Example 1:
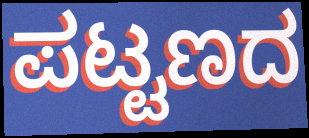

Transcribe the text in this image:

ಪಟ್ಟಣದ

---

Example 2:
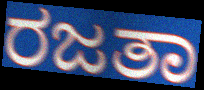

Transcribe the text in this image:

ರಜತಾ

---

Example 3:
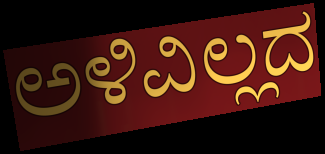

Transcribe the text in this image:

ಅಳಿವಿಲ್ಲದ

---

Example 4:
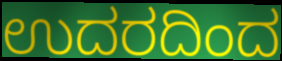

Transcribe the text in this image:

ಉದರದಿಂದ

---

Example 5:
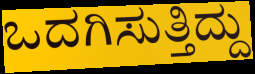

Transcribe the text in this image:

ಒದಗಿಸುತ್ತಿದ್ದು